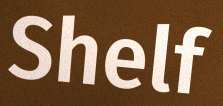
Shelf